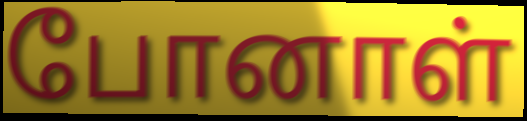
போனாள்